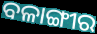
ବଳାଙ୍ଗୀର